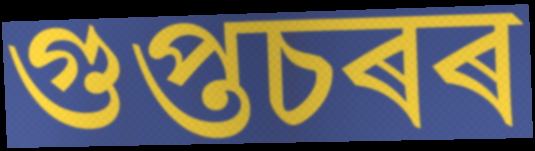
গুপ্তচৰৰ